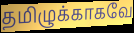
தமிழுக்காகவே